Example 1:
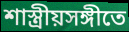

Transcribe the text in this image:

শাস্ত্রীয়সঙ্গীতে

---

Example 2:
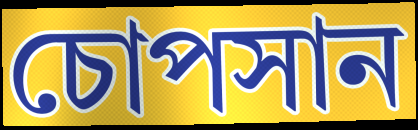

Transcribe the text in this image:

চোপসান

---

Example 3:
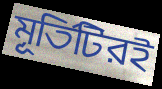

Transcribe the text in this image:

মূর্তিটিরই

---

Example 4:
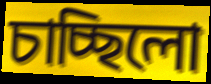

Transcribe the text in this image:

চাচ্ছিলো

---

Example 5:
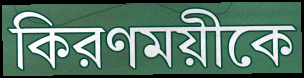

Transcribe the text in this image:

কিরণময়ীকে